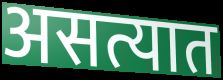
असत्यात